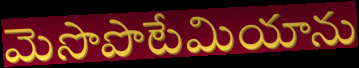
మెసొపొటేమియాను